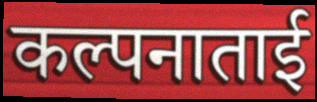
कल्पनाताई